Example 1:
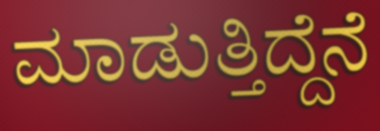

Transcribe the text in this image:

ಮಾಡುತ್ತಿದ್ದೆನೆ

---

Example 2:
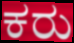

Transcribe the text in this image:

ಕರು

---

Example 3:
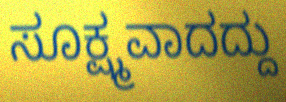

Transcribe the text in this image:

ಸೂಕ್ಷ್ಮವಾದದ್ದು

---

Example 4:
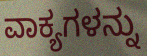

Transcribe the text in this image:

ವಾಕ್ಯಗಳನ್ನು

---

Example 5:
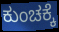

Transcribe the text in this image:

ಕುಂಚಕ್ಕೆ